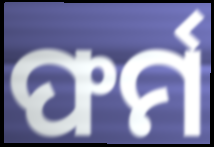
ଫର୍ମ